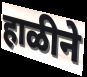
हाळीने